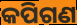
କପିଗଣ